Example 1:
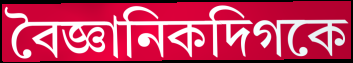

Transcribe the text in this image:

বৈজ্ঞানিকদিগকে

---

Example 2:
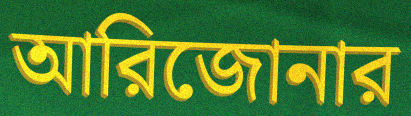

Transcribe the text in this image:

আরিজোনার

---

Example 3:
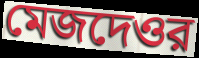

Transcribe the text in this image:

মেজদেওর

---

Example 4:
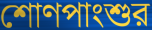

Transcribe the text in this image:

শোণপাংশুর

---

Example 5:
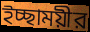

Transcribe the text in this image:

ইচ্ছাময়ীর